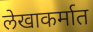
लेखाकर्मात